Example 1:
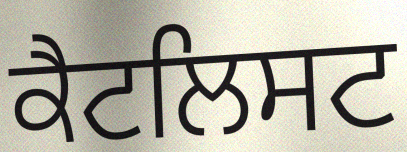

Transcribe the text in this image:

ਕੈਟਲਿਸਟ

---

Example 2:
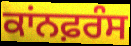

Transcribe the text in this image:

ਕਾਂਨਫ਼ਰੰਸ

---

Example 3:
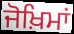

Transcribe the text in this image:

ਜੋਖ਼ਿਮਾਂ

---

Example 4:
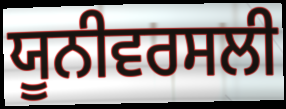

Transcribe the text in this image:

ਯੂਨੀਵਰਸਲੀ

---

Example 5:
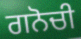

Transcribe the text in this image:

ਗਨੋਚੀ